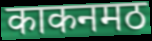
काकनमठ